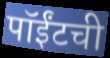
पॉईंटची